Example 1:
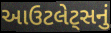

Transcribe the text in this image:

આઉટલેટ્સનું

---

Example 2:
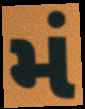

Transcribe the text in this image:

મં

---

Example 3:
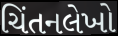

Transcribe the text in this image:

ચિંતનલેખો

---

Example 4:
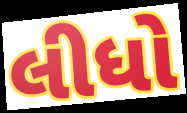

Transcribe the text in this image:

લીધો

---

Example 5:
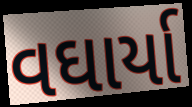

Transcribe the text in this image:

વઘાર્યા